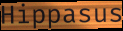
Hippasus